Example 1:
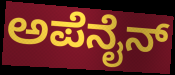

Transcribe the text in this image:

ಅಪೆನೈನ್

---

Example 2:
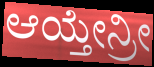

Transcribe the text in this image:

ಆಯ್ತೇನ್ರೀ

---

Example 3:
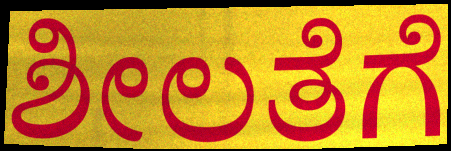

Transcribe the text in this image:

ಶೀಲತೆಗೆ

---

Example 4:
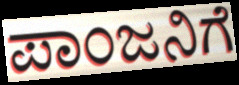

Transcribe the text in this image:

ಪಾಂಜನಿಗೆ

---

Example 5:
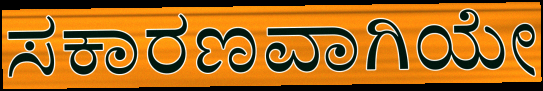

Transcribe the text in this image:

ಸಕಾರಣವಾಗಿಯೇ